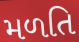
મળતિ